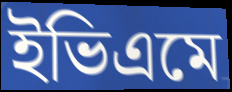
ইভিএমে